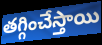
తగ్గించేస్తాయి